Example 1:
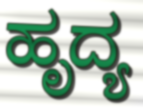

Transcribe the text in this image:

ಹೃದ್ಯ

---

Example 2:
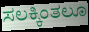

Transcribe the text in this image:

ಸಲಕ್ಕಿಂತಲೂ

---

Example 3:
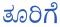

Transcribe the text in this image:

ತೂರಿಗೆ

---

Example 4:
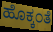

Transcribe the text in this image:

ಹೊಕ್ಕಂತೆ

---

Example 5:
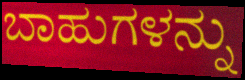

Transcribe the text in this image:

ಬಾಹುಗಳನ್ನು